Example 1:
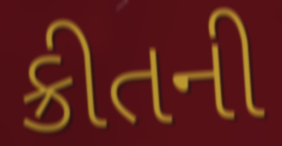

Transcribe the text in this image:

ક્રીતની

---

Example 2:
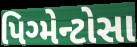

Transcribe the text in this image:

પિગ્મેન્ટોસા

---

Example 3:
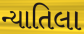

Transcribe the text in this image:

ન્યાતિલા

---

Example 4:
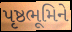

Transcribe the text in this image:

પૃષ્ઠભૂમિને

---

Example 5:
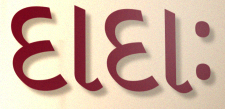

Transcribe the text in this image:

દાદાઃ